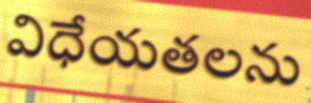
విధేయతలను